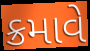
ક્રમાવે